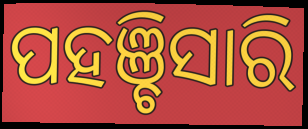
ପହଞ୍ଚିସାରି